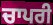
ਚਾਪਰੀ